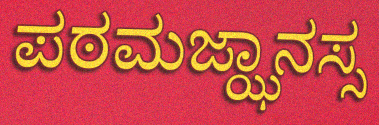
ಪಠಮಜ್ಝಾನಸ್ಸ